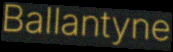
Ballantyne